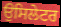
ਉਸਿਲੇਟਰ